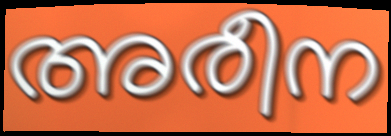
അരീന